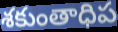
శకుంతాధిప